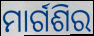
ମାର୍ଗଶିର